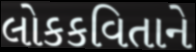
લોકકવિતાને